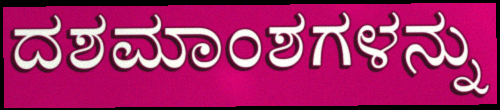
ದಶಮಾಂಶಗಳನ್ನು